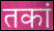
तकां